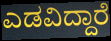
ಎಡವಿದ್ದಾರೆ